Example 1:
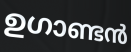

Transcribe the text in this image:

ഉഗാണ്ടൻ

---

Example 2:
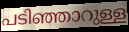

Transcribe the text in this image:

പടിഞ്ഞാറുള്ള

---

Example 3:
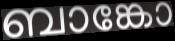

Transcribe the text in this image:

ബാങ്കോ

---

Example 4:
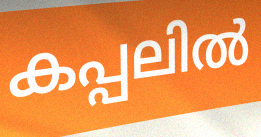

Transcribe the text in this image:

കപ്പലിൽ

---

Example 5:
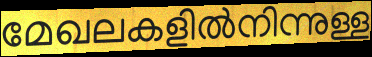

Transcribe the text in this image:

മേഖലകളിൽനിന്നുള്ള